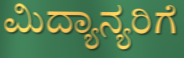
ಮಿದ್ಯಾನ್ಯರಿಗೆ